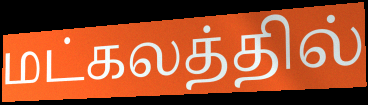
மட்கலத்தில்